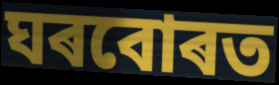
ঘৰবোৰত